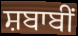
ਸ਼ਬਾਬੀਂ